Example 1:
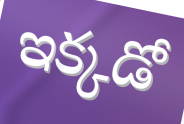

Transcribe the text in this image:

ఇక్కడో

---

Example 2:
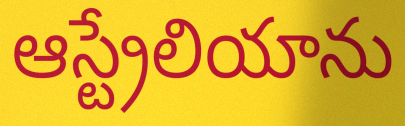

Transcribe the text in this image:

ఆస్ట్రేలియాను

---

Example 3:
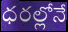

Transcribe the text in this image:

ధరల్లోనే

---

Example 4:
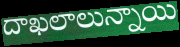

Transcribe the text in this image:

దాఖలాలున్నాయి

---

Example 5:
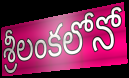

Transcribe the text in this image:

శ్రీలంకలోనో